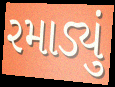
રમાડ્યું